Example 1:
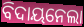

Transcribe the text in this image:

ବିଦାୟନେଲା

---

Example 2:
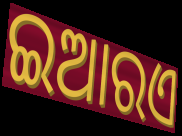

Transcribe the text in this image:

ଇଆରଏ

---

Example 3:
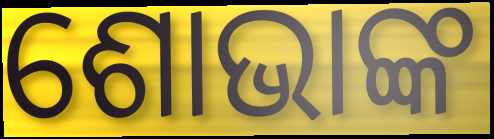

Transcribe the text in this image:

ଶୋଭାଙ୍କ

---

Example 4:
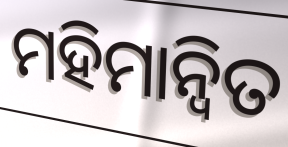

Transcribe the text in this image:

ମହିମାନ୍ଵିତ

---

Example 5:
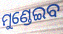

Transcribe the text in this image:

ମୁଣ୍ଡେଇବ